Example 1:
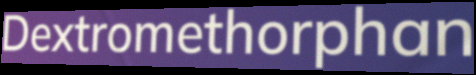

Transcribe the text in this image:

Dextromethorphan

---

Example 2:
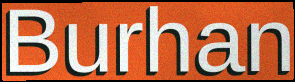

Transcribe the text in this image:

Burhan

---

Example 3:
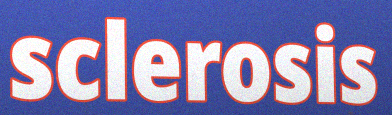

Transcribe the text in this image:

sclerosis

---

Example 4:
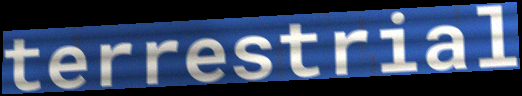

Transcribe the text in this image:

terrestrial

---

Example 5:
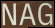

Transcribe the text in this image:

NAG